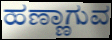
ಹಣ್ಣಾಗುವ